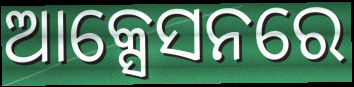
ଆକ୍ସେସନରେ